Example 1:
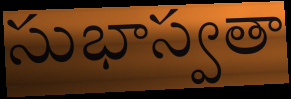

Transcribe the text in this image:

సుభాస్వతా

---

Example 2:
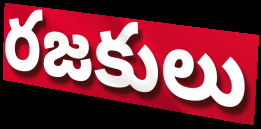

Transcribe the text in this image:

రజకులు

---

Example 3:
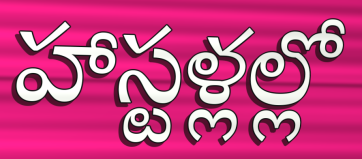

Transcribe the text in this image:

హాస్టళ్లల్లో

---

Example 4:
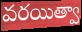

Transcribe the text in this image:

వరయిత్వా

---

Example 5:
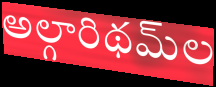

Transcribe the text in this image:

అల్గారిథమ్‌ల